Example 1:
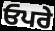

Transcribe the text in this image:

ਓਪਰੇ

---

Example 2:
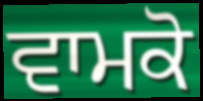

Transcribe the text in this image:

ਵਾਮਕੋ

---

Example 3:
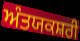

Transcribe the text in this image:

ਅੰਤਯਕਸ਼ਰੀ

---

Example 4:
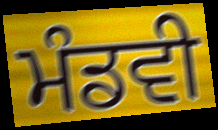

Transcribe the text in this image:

ਮੰਡਵੀ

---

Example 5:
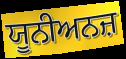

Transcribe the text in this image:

ਯੂਨੀਅਨਜ਼